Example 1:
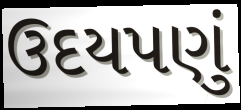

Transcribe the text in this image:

ઉદયપણું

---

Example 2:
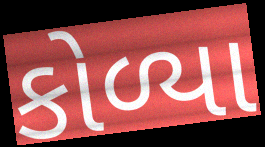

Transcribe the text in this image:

કોળ્યા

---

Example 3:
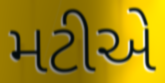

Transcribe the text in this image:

મટીએ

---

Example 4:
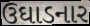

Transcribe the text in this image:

ઉઘાડનાર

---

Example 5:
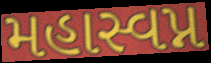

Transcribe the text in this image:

મહાસ્વપ્ન